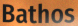
Bathos